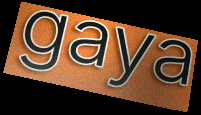
gaya